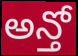
అన్తో